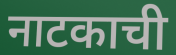
नाटकाची